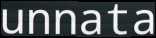
unnata